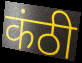
कंठी